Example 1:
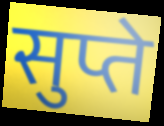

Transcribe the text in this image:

सुप्ते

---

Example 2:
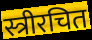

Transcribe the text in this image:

स्त्रीरचित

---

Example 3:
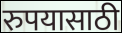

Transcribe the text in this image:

रुपयासाठी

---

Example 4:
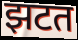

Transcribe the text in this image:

झटत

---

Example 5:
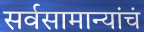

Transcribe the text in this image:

सर्वसामान्यांचं